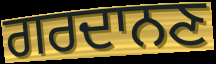
ਗਰਦਾਨਣ